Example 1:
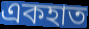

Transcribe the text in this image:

একহাত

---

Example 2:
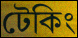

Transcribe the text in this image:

টেকিং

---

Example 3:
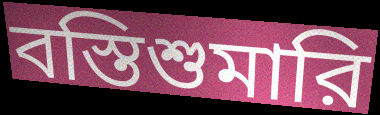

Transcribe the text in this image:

বস্তিশুমারি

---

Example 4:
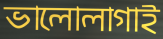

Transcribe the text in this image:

ভালোলাগাই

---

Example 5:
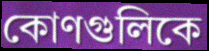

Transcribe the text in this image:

কোণগুলিকে